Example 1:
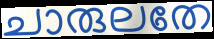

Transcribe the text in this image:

ചാരുലതേ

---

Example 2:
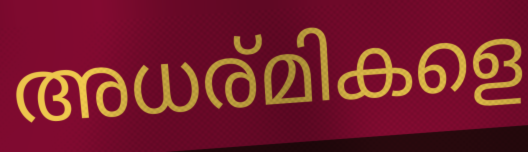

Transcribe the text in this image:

അധര്മികളെ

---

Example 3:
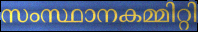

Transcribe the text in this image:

സംസ്ഥാനകമ്മിറ്റി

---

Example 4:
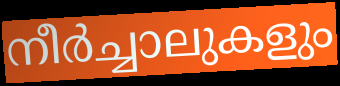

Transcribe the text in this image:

നീർച്ചാലുകളും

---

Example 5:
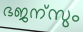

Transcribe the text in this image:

ഭജന്സും